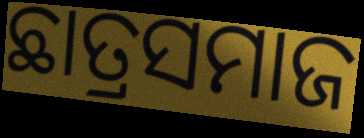
ଛାତ୍ରସମାଜ